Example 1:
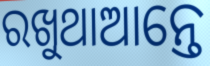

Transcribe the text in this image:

ରଖୁଥାଆନ୍ତେ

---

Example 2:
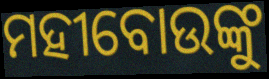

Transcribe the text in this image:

ମହୀବୋଉଙ୍କୁ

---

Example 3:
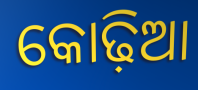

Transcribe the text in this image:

କୋଢ଼ିଆ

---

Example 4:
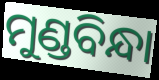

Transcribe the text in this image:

ମୁଣ୍ଡବିନ୍ଧା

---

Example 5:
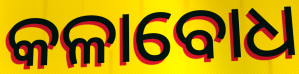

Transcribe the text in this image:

କଳାବୋଧ